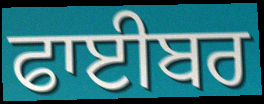
ਫਾਈਬਰ